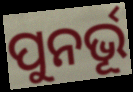
ପୁନର୍ଭୂ